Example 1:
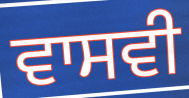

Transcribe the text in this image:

ਵਾਸਵੀ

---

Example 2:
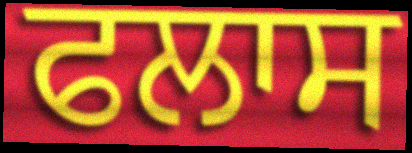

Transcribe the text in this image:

ਫਲਾਸ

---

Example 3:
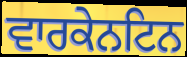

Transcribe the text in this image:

ਵਾਰਕੇਨਟਿਨ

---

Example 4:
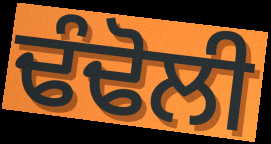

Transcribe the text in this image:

ਢੰਢੋਲੀ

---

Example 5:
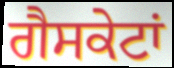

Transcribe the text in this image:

ਗੈਸਕੇਟਾਂ